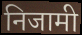
निजामी